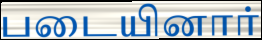
படையினார்